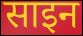
साइन